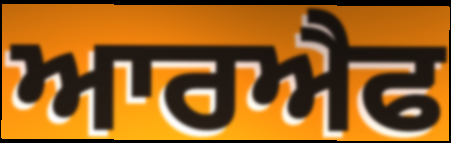
ਆਰਐਫ